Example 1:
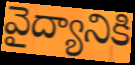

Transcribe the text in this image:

వైద్యానికి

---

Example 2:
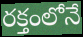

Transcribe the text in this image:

రక్తంలోనే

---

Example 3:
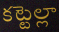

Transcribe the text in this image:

కట్టెల్లా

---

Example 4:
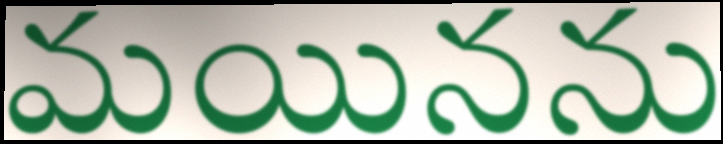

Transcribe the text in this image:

మయినను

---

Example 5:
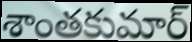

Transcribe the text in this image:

శాంతకుమార్